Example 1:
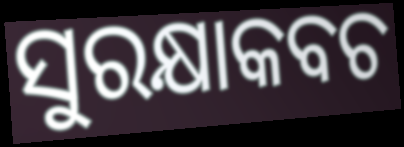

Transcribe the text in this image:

ସୁରକ୍ଷାକବଚ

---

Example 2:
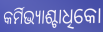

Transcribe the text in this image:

କର୍ମିଭ୍ୟାଶ୍ଚାଧିକୋ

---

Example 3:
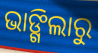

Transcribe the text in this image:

ଭାଙ୍ଗିଲାରୁ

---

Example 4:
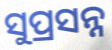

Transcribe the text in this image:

ସୁପ୍ରସନ୍ନ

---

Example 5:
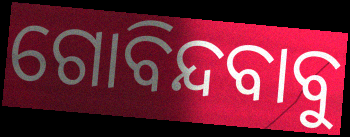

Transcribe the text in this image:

ଗୋବିନ୍ଦବାବୁ